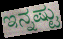
ಇನ್ನಷ್ಟು